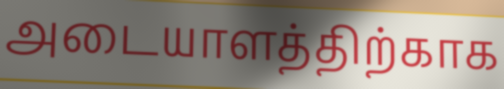
அடையாளத்திற்காக